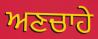
ਅਣਚਾਹੇ